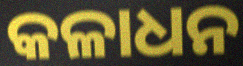
କଳାଧନ